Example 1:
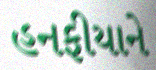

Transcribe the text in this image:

હનફીયાને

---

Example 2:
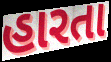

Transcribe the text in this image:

હારતા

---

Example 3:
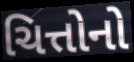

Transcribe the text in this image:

ચિત્તોનો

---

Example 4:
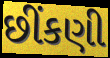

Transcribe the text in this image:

છીંકણી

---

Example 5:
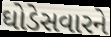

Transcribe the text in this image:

ઘોડેસવારને